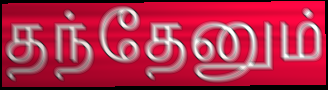
தந்தேனும்